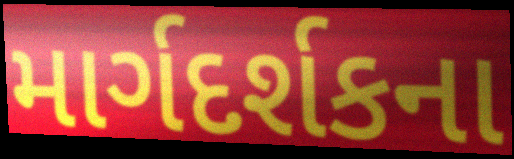
માર્ગદર્શકના